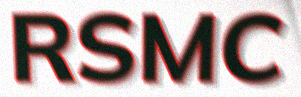
RSMC